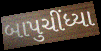
બાપુચીંધ્યા